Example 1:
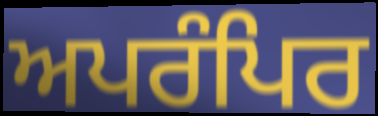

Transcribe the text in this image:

ਅਪਰੰਪਿਰ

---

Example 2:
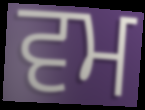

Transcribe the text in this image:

ਵਮ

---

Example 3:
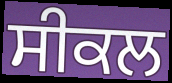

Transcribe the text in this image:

ਸੀਕਲ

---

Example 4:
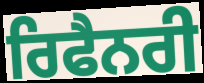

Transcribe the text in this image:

ਰਿਫੈਨਰੀ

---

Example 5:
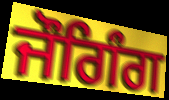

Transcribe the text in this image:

ਜੌਗਿੰਗ